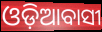
ଓଡ଼ିଆବାସୀ